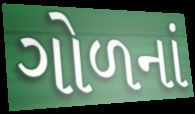
ગોળનાં